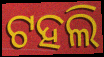
ଟହଲି